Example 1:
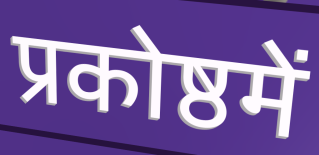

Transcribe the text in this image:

प्रकोष्ठमें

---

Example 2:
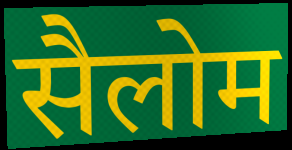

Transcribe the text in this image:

सैलोम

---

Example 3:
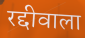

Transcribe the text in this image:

रद्दीवाला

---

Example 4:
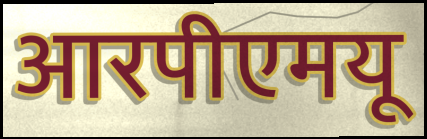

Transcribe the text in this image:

आरपीएमयू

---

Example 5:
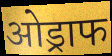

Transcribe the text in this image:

ओड्राफ